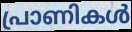
പ്രാണികൾ